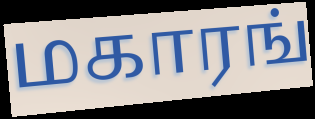
மகாரங்